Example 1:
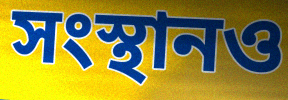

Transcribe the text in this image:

সংস্থানও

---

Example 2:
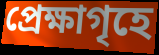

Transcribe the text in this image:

প্রেক্ষাগৃহে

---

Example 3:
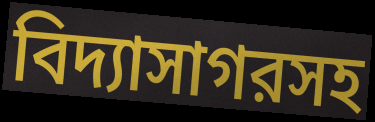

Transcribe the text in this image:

বিদ্যাসাগরসহ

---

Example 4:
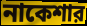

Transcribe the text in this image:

নাকেশার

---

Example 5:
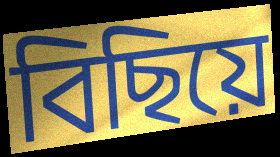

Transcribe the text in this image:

বিছিয়ে